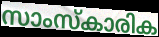
സാംസ്കാരിക